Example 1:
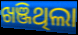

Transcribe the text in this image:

ଖଞ୍ଜିଥିଲା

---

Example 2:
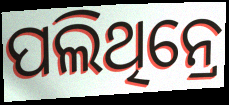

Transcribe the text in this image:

ପଲିଥିନ୍ରେ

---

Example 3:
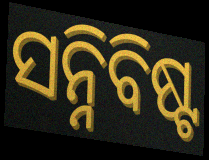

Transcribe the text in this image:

ସନ୍ନିବିଷ୍ଟ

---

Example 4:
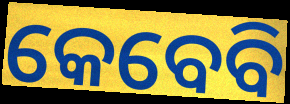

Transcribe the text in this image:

କେବେବି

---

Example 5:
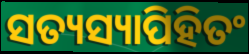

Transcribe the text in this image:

ସତ୍ୟସ୍ୟାପିହିତଂ